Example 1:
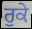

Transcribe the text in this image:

ਰੁਕੇ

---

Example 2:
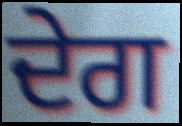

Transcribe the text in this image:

ਦੇਗ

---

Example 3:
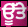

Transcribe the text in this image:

ਊੱਤੇ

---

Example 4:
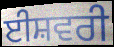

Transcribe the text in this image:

ਈਸ਼ਵਰੀ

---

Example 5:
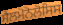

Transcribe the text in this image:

ਸੈਲਮੋਨੋਲੋਸਿਸ